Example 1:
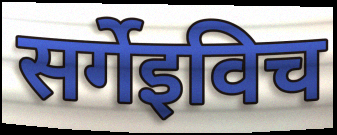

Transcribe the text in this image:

सर्गेइविच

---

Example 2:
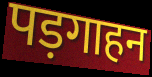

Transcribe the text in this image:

पड़गाहन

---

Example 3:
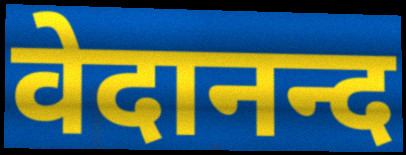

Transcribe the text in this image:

वेदानन्द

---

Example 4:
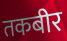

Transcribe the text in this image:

तकबीर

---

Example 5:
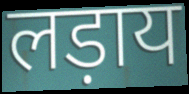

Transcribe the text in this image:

लड़ाय